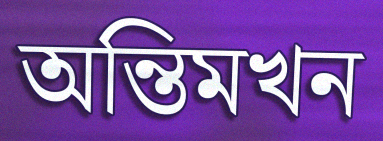
অন্তিমখন